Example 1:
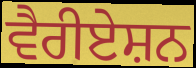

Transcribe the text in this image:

ਵੈਰੀਏਸ਼ਨ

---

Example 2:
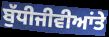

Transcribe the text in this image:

ਬੁੱਧੀਜੀਵੀਆਂਤੇ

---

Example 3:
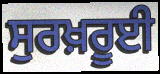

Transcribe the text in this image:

ਸੁਰਖ਼ਰੂਈ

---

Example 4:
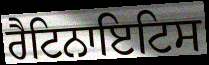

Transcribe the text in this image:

ਰੈਟਿਨਾਇਟਿਸ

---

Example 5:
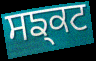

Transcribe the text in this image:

ਸਙ੍ਕਟ